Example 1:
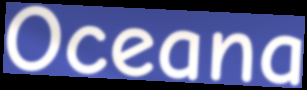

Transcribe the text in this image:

Oceana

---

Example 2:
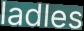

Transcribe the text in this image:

ladles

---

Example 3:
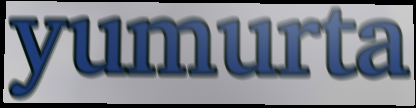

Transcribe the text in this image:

yumurta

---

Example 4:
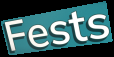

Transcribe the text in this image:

Fests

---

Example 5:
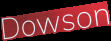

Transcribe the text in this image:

Dowson